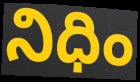
నిధిం